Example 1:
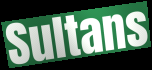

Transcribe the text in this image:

Sultans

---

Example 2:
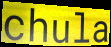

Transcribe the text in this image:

chula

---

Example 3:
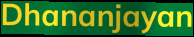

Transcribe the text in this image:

Dhananjayan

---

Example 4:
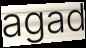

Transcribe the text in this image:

agad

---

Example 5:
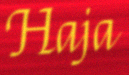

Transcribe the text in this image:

Haja